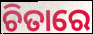
ଚିତାରେ